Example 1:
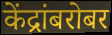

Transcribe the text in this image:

केंद्रांबरोबर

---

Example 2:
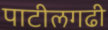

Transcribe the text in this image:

पाटीलगढी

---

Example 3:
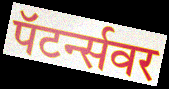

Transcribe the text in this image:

पॅटर्न्सवर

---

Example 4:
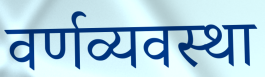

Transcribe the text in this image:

वर्णव्यवस्था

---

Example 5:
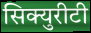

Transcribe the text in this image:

सिक्युरीटी